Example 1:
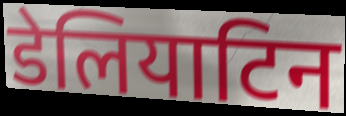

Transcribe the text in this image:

डेलियाटिन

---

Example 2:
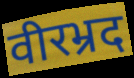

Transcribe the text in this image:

वीरभ्रद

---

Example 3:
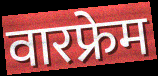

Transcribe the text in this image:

वारफ्रेम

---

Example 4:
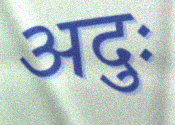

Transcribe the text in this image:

अदुः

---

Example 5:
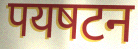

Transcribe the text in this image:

पयषटन